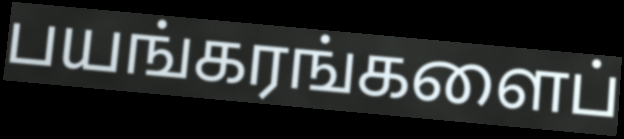
பயங்கரங்களைப்